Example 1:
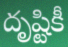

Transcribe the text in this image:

దృష్టికీ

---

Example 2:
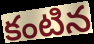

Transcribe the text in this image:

కంటిన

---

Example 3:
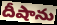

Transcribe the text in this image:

దీషాను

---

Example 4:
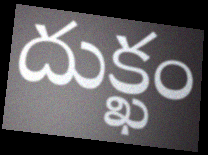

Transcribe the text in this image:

దుక్ఖం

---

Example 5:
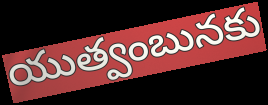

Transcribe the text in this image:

యుత్వంబునకు